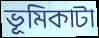
ভূমিকাটা